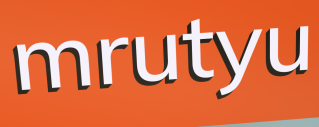
mrutyu